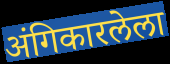
अंगिकारलेला